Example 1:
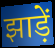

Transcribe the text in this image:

झाड़ें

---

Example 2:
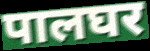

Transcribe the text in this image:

पालघर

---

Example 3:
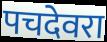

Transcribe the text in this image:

पचदेवरा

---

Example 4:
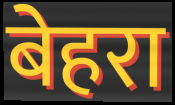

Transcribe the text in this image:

बेहरा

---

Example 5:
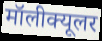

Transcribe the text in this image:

मॉलीक्यूलर